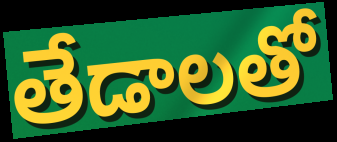
తేడాలతో